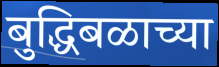
बुद्धिबळाच्या